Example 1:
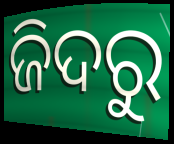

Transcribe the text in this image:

ଜିଦରୁ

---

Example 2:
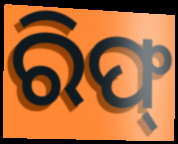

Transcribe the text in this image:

ରିଫ୍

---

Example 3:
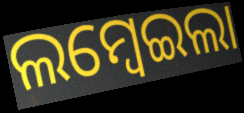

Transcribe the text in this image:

ଲମ୍ବେଇଲା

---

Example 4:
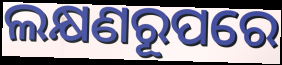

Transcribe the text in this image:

ଲକ୍ଷଣରୂପରେ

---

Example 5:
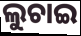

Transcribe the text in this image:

ଲୁଚାଇ